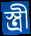
স্ত্ৰী